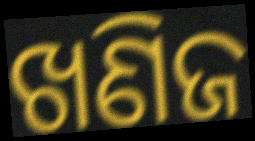
ଖଣିଜ